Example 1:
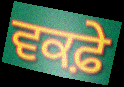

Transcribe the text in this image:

ਵਕਫ਼ੇ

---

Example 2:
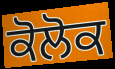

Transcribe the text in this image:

ਕੋਲੋਕ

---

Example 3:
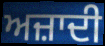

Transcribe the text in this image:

ਅਜ਼ਾਦੀ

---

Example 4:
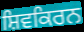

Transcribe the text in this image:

ਸ਼ਿਵਕਿਰਨ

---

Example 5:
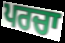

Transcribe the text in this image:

ਪਰਚਾ